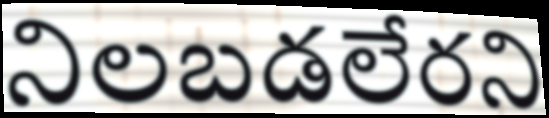
నిలబడలేరని